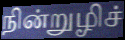
நின்றுழிச்